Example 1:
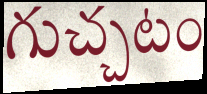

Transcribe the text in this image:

గుచ్చటం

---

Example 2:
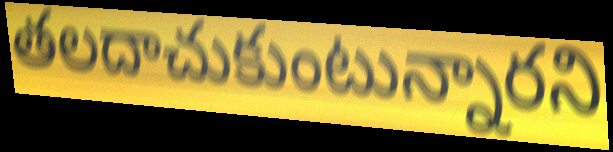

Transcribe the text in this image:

తలదాచుకుంటున్నారని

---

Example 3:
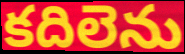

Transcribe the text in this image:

కదిలెను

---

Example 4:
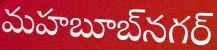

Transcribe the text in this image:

మహబూబ్‌నగర్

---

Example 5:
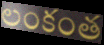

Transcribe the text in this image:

లంకంత